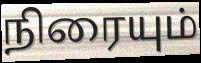
நிரையும்